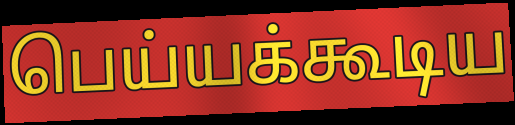
பெய்யக்கூடிய